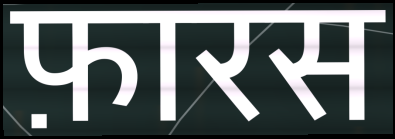
फ़ारस